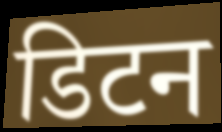
डिटन